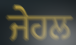
ਜੇਹਲ